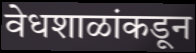
वेधशाळांकडून